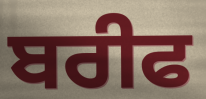
ਬਰੀਫ